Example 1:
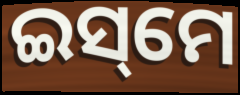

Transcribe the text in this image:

ଇସ୍‌ମେ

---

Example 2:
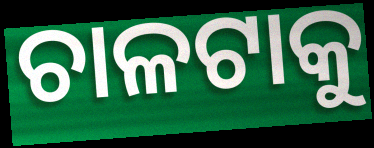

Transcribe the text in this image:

ଚାଳଟାକୁ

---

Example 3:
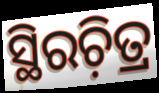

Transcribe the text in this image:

ସ୍ଥିରଚ଼ିତ୍ର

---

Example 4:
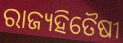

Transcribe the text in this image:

ରାଜ୍ୟହିତୈଷୀ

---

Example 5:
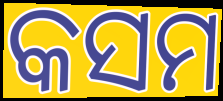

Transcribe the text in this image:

କସମ